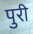
पुरी